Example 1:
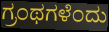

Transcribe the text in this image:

ಗ್ರಂಥಗಳೆಂದು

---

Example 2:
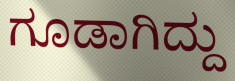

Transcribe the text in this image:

ಗೂಡಾಗಿದ್ದು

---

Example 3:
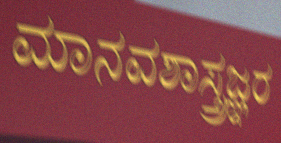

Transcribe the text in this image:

ಮಾನವಶಾಸ್ತ್ರಜ್ಞರ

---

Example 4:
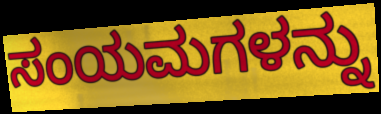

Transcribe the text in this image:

ಸಂಯಮಗಳನ್ನು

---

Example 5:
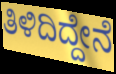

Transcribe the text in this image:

ತಿಳಿದಿದ್ದೇನೆ